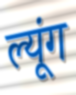
ल्यूंग